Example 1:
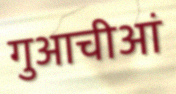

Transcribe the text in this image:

गुआचीआं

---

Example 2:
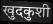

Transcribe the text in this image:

खुदकुशी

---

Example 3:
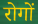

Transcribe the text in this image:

रोगों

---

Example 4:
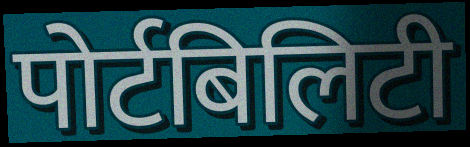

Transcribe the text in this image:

पोर्टबिलिटी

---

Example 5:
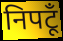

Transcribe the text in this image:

निपटूँ